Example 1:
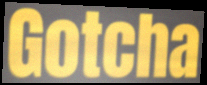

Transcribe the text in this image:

Gotcha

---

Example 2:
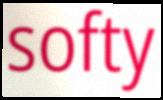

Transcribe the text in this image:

softy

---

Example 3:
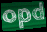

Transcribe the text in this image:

opd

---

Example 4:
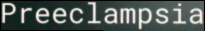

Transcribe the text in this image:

Preeclampsia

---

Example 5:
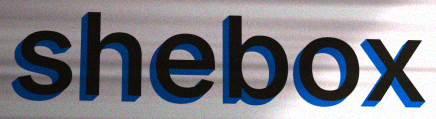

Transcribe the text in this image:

shebox